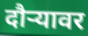
दौऱ्यावर